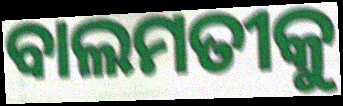
ବାଲମତୀକୁ